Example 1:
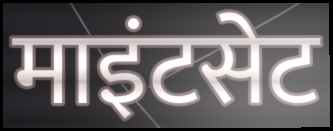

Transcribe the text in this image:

माइंटसेट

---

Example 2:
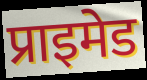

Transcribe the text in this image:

प्राइमेड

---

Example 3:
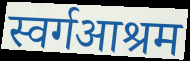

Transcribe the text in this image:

स्वर्गआश्रम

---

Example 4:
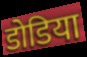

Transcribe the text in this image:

डोडिया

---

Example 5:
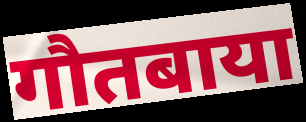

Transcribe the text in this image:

गौतबाया